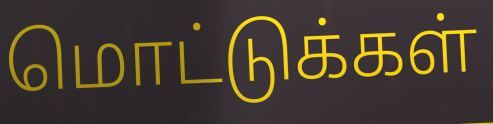
மொட்டுக்கள்